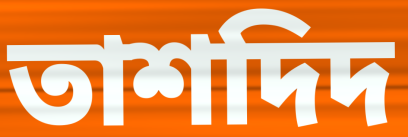
তাশদিদ